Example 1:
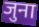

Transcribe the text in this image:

जुना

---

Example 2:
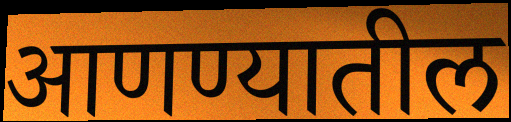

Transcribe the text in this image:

आणण्यातील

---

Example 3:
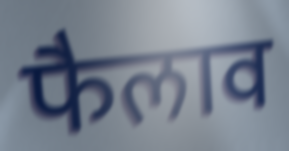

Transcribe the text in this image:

फैलाव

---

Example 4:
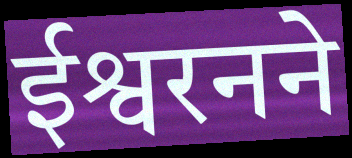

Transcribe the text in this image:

ईश्वरनने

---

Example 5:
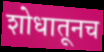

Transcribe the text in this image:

शोधातूनच